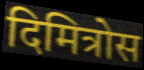
दिमित्रोस